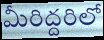
మీరిద్దరిలో